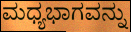
ಮಧ್ಯಭಾಗವನ್ನು